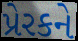
પ્રેરકને